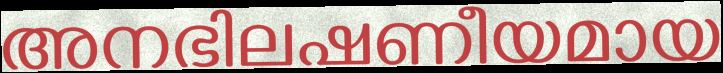
അനഭിലഷണീയമായ